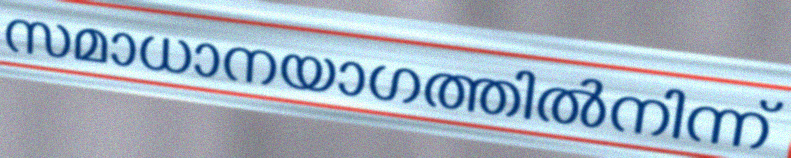
സമാധാനയാഗത്തിൽനിന്ന്